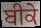
ਬੀਕੇ